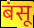
बंसू